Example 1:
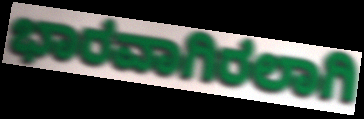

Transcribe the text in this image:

ಭಾರವಾಗಿರಲಾಗಿ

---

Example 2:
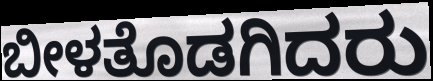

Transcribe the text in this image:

ಬೀಳತೊಡಗಿದರು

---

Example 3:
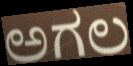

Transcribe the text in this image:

ಅಗಲ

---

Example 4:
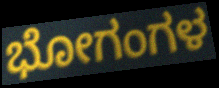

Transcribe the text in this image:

ಭೋಗಂಗಳ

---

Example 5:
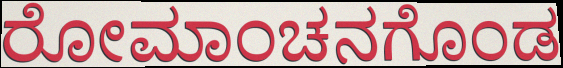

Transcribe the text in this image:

ರೋಮಾಂಚನಗೊಂಡ